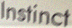
Instinct